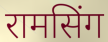
रामसिंग